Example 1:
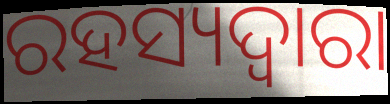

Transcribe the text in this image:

ରହସ୍ୟଦ୍ଵାରା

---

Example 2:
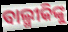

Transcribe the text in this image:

ବାଲ୍ମୀକିଙ୍କୁ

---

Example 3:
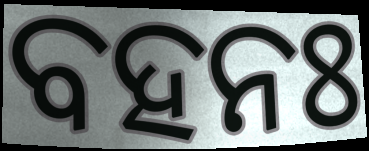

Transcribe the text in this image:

ବହନଃ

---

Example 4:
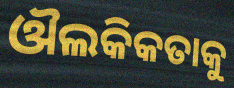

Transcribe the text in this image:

ଔଲକିକତାକୁ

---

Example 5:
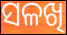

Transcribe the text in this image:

ସଳଖି